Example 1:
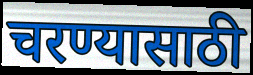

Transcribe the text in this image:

चरण्यासाठी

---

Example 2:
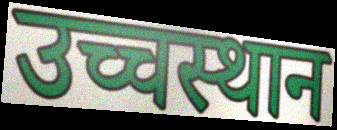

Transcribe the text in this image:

उच्चस्थान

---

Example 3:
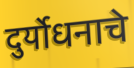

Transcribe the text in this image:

दुर्योधनाचे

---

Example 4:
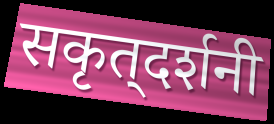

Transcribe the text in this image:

सकृत्‌दर्शनी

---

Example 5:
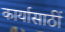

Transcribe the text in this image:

कार्यासाठीं